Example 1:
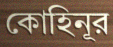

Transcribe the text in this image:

কোহিনূর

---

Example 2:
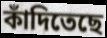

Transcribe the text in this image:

কাঁদিতেছে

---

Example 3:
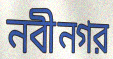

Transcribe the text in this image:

নবীনগর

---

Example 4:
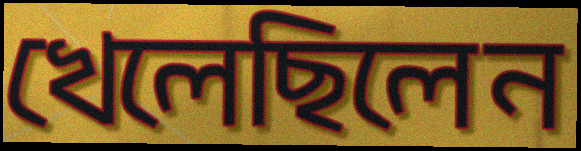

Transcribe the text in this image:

খেলেছিলেন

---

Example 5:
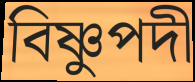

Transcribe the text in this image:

বিষ্ণুপদী